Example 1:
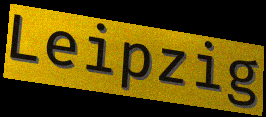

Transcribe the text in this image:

Leipzig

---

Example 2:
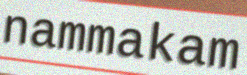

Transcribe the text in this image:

nammakam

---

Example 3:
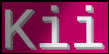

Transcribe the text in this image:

Kii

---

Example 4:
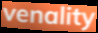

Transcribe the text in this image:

venality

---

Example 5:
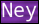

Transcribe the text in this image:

Ney